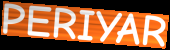
PERIYAR